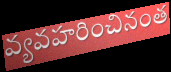
వ్యవహరించినంత